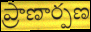
ప్రాణార్పణ